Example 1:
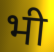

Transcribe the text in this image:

भी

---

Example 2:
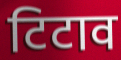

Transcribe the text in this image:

टिटाव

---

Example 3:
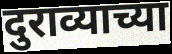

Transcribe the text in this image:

दुराव्याच्या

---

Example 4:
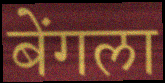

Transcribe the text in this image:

बेंगला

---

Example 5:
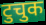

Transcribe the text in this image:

टुचुक